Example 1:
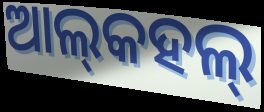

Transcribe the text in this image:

ଆଲ୍‌କହଲ୍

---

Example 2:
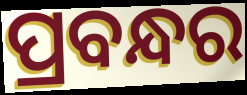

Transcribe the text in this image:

ପ୍ରବନ୍ଧର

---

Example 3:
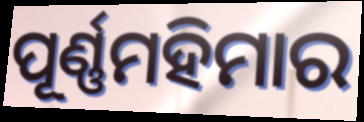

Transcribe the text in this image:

ପୂର୍ଣ୍ଣମହିମାର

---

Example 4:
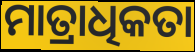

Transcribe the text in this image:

ମାତ୍ରାଧିକତା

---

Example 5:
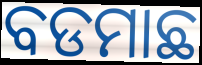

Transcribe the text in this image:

ବଡମାଛ